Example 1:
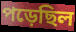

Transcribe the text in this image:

পড়েছিল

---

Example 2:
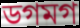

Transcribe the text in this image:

ডগমগ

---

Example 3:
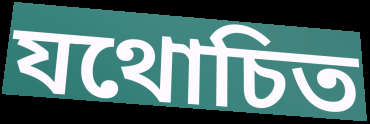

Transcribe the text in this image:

যথোচিত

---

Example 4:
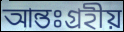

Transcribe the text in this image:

আন্তঃগ্রহীয়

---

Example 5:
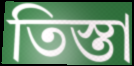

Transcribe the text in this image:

তিস্তা